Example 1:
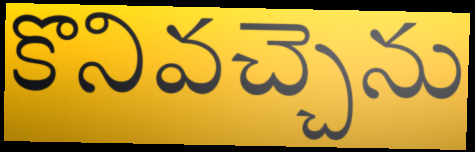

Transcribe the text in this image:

కొనివచ్చెను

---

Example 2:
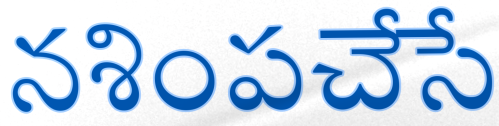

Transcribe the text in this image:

నశింపచేసే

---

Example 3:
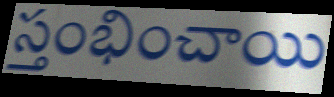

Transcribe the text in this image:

స్తంభించాయి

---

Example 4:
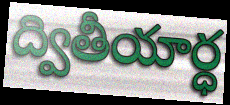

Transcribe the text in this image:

ద్వితీయార్ధ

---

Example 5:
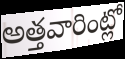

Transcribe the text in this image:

అత్తవారింట్లో